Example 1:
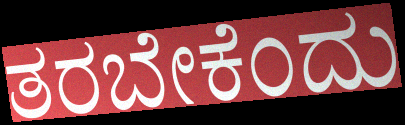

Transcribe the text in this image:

ತರಬೇಕೆಂದು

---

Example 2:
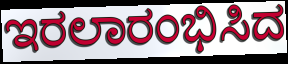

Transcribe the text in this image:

ಇರಲಾರಂಭಿಸಿದ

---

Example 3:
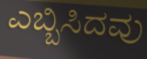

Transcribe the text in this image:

ಎಬ್ಬಿಸಿದವು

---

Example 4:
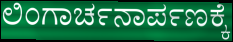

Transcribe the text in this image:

ಲಿಂಗಾರ್ಚನಾರ್ಪಣಕ್ಕೆ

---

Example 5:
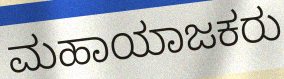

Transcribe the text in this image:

ಮಹಾಯಾಜಕರು